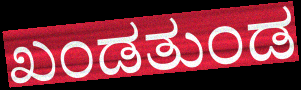
ಖಂಡತುಂಡ